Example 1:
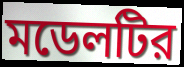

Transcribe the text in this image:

মডেলটির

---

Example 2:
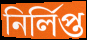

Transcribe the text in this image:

নির্লিপ্ত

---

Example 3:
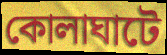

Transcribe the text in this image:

কোলাঘাটে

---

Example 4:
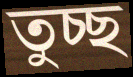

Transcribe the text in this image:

তুচ্ছ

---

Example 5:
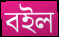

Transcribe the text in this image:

বইল